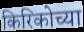
किरिकोच्या